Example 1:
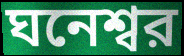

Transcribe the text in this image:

ঘনেশ্বর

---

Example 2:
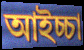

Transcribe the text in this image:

আইচ্চা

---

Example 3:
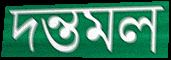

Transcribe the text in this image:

দন্তমল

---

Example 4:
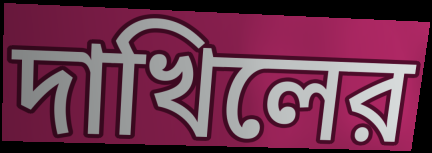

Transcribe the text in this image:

দাখিলের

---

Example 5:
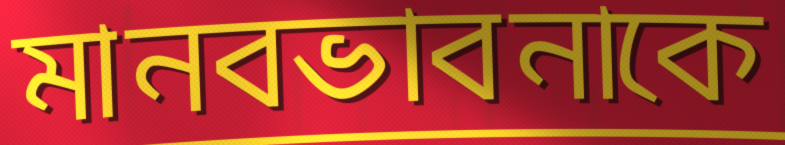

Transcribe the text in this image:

মানবভাবনাকে